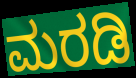
ಮರಡಿ